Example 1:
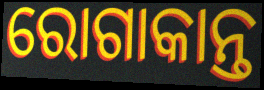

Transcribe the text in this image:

ରୋଗାକାନ୍ତ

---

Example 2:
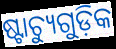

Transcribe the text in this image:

ଷ୍ଟାଚ୍ୟୁଗୁଡ଼ିକ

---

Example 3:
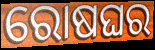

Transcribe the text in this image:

ରୋଷଘର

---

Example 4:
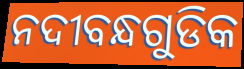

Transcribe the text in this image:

ନଦୀବନ୍ଧଗୁଡିକ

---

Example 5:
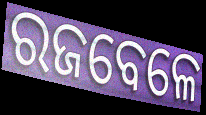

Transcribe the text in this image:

ରଜବେଳେ